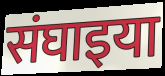
संघाइया